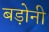
बड़ोनी